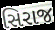
સિરાજ